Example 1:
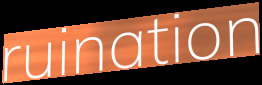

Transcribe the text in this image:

ruination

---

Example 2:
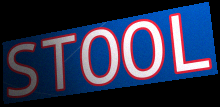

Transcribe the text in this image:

STOOL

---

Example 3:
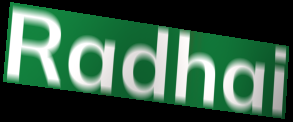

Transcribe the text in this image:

Radhai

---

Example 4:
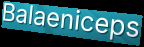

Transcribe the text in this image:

Balaeniceps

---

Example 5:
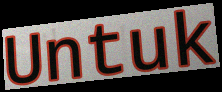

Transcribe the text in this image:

Untuk